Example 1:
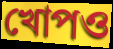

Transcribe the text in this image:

খোপও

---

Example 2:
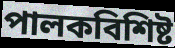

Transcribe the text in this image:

পালকবিশিষ্ট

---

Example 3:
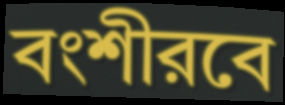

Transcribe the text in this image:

বংশীরবে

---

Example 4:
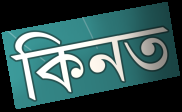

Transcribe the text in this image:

কিনত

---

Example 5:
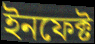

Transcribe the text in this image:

ইনফেক্ট